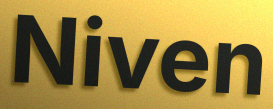
Niven